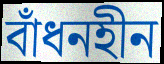
বাঁধনহীন